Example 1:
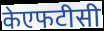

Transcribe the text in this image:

केएफटीसी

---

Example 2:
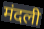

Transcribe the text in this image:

मंदली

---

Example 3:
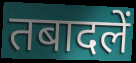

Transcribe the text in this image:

तबादलें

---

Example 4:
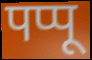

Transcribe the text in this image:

पप्‍पू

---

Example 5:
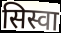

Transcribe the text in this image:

सिस्वा